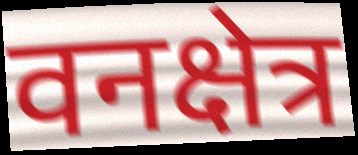
वनक्षेत्र